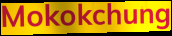
Mokokchung